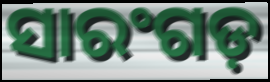
ସାରଂଗଡ଼